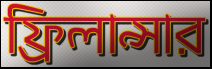
ফ্রিলান্সার